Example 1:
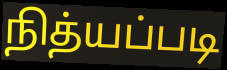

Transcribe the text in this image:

நித்யப்படி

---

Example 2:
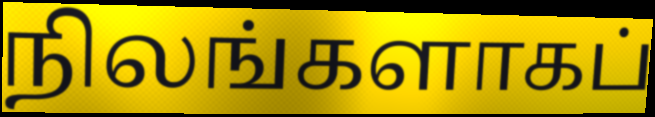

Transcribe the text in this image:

நிலங்களாகப்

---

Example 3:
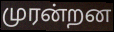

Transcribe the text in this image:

முரன்றன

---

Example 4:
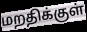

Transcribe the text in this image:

மறதிக்குள்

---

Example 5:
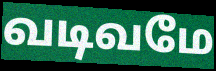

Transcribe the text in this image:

வடிவமே